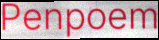
Penpoem